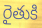
రైతుకి